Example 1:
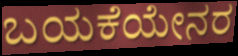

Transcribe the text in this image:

ಬಯಕೆಯೇನರ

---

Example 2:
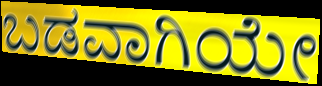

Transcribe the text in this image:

ಬಡವಾಗಿಯೇ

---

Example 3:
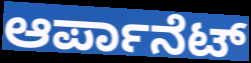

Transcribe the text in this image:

ಆರ್ಪಾನೆಟ್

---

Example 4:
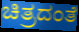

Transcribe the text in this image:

ಚಿತ್ರದಂತೆ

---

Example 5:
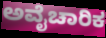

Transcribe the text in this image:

ಅವೈಚಾರಿಕ